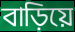
বাড়িয়ে